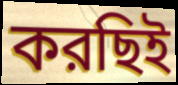
করছিই